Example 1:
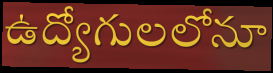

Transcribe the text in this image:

ఉద్యోగులలోనూ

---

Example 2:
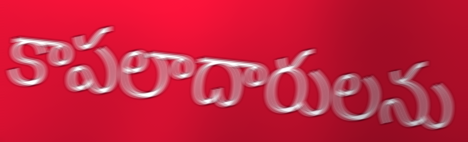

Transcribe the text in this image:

కాపలాదారులను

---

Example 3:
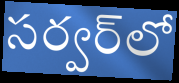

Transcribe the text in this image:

సర్వర్‌లో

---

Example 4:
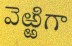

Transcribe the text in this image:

వెఱ్ఱిగా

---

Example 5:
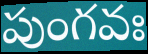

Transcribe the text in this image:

పుంగవః